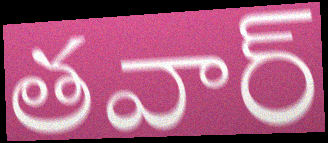
తవార్